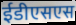
ईडीएसएस